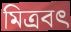
মিত্রবৎ